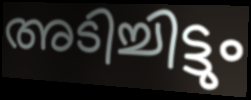
അടിച്ചിട്ടും